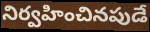
నిర్వహించినపుడే